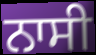
ਨਾਸੀ